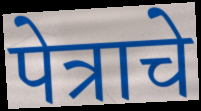
पेत्राचे